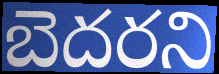
బెదరని